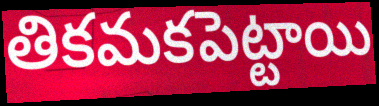
తికమకపెట్టాయి